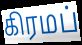
கிரமப்